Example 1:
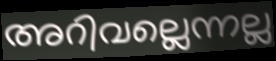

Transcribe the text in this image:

അറിവല്ലെന്നല്ല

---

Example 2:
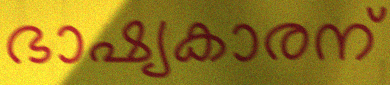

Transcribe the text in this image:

ഭാഷ്യകാരന്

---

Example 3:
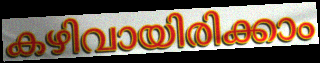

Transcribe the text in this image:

കഴിവായിരിക്കാം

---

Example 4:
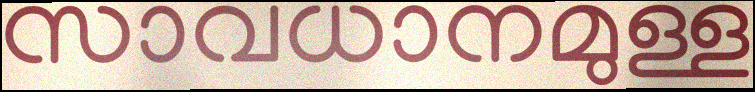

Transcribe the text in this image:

സാവധാനമുള്ള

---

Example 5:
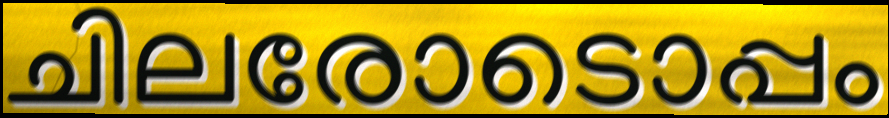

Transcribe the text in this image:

ചിലരോടൊപ്പം